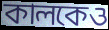
কালকেও